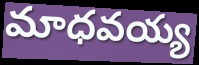
మాధవయ్య